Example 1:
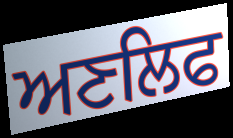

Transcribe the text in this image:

ਅਣਲਿਫ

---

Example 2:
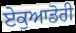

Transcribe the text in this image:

ਏਕੁਆਡੋਰੀ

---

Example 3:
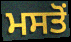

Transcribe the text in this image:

ਮਸਤੋਂ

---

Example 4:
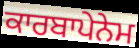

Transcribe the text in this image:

ਕਾਰਬਾਪੇਨੇਮ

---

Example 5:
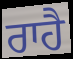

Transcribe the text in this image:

ਰਾਹੈ